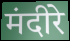
मंदीरे